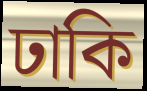
ঢাকি